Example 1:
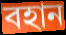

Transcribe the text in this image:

বহান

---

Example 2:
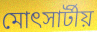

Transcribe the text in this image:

মোৎসার্টীয়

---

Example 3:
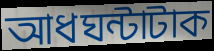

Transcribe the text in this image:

আধঘন্টাটাক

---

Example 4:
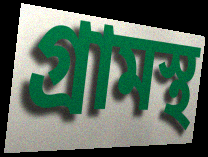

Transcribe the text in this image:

গ্রামস্থ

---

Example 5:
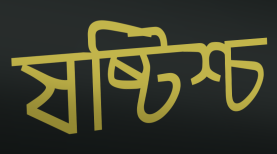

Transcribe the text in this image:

ষষ্টিশ্চ